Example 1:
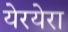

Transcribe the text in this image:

येरयेरा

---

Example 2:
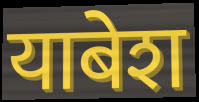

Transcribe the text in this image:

याबेश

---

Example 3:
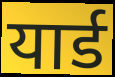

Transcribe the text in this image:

यार्ड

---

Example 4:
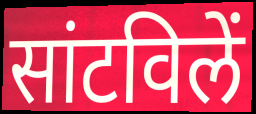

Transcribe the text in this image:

सांटविलें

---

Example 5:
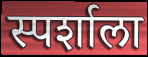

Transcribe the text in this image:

स्पर्शाला